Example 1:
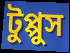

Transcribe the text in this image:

টুপ্পুস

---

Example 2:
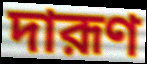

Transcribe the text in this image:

দারূণ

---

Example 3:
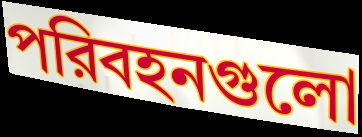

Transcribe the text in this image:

পরিবহনগুলো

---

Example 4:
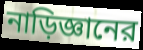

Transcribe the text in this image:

নাড়িজ্ঞানের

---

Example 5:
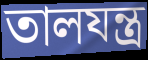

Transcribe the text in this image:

তালযন্ত্র